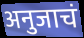
अनुजाचं